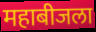
महाबीजला